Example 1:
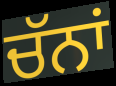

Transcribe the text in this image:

ਚੱਨਾਂ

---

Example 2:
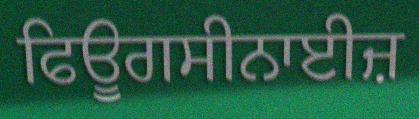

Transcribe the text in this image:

ਫਿਊਗਸੀਨਾਈਜ਼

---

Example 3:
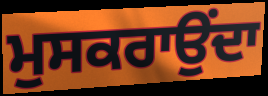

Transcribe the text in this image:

ਮੁਸਕਰਾਉਂਦਾ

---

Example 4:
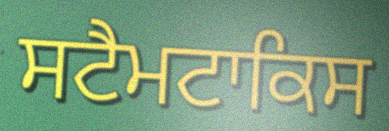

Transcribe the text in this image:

ਸਟੈਮਟਾਕਿਸ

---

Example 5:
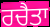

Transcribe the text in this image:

ਰਚੈਤਾ